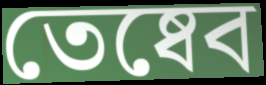
তেষ্বেব